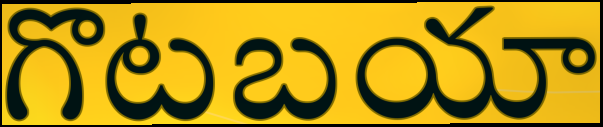
గొటబయా